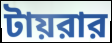
টায়রার